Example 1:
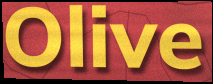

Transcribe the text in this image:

Olive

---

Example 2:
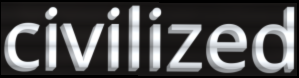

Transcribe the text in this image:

civilized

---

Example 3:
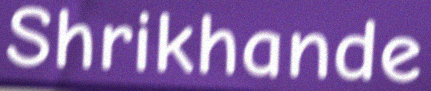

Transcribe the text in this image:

Shrikhande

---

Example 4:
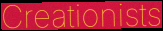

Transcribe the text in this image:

Creationists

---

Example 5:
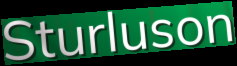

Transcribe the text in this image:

Sturluson